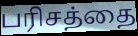
பரிசத்தை